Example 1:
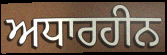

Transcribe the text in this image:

ਅਧਾਰਹੀਨ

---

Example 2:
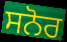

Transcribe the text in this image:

ਸਨੋਰ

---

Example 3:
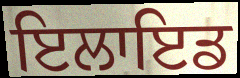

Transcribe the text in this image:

ਇਲਾਇਡ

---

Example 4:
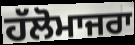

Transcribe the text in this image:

ਹੱਲੋਮਾਜਰਾ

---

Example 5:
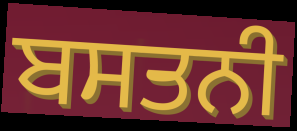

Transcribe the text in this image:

ਬਸਤਨੀ